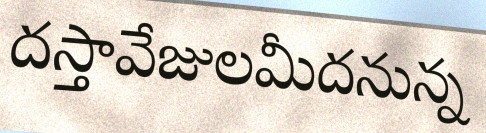
దస్తావేజులమీదనున్న